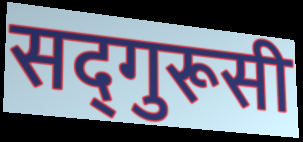
सद्‍गुरूसी